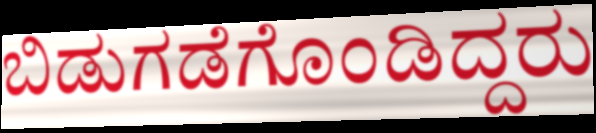
ಬಿಡುಗಡೆಗೊಂಡಿದ್ದರು